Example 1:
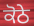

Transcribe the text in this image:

ਕੋਠੇ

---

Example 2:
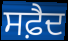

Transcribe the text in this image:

ਸਫ਼ੈਦ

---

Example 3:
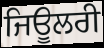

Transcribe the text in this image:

ਜਿਊਲਰੀ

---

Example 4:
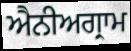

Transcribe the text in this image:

ਐਨੀਅਗ੍ਰਾਮ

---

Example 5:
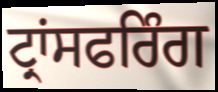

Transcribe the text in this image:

ਟ੍ਰਾਂਸਫਰਿੰਗ